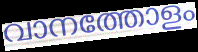
വാനത്തോളം